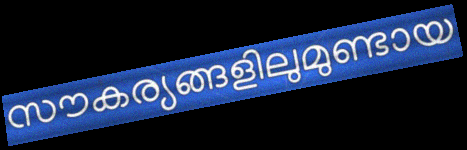
സൗകര്യങ്ങളിലുമുണ്ടായ